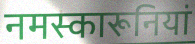
नमस्कारूनियां